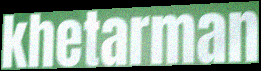
khetarman